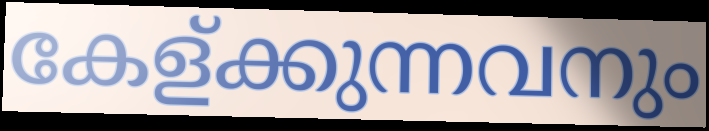
കേള്ക്കുന്നവനും